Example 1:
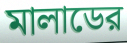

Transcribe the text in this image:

মালাডের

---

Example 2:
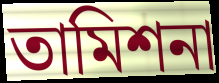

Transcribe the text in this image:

তামিশনা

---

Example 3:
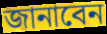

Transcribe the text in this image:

জানাবেন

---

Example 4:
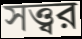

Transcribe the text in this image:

সত্ত্বর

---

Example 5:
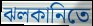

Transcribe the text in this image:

ঝলকানিতে